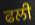
ਫਲੀ